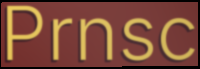
Prnsc